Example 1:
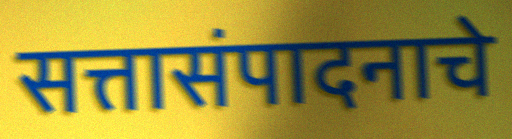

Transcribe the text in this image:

सत्तासंपादनाचे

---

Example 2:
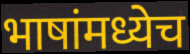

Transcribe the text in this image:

भाषांमध्येच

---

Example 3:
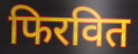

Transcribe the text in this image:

फिरवित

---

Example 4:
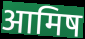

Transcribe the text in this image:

आमिष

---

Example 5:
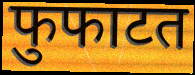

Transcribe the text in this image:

फुफाटत